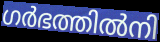
ഗർഭത്തിൽനി